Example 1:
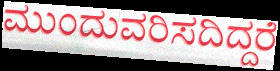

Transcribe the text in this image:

ಮುಂದುವರಿಸದಿದ್ದರೆ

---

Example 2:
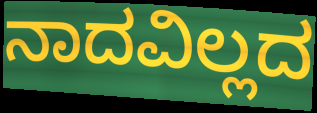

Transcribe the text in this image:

ನಾದವಿಲ್ಲದ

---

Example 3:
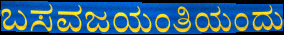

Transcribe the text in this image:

ಬಸವಜಯಂತಿಯಂದು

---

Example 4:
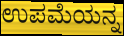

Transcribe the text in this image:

ಉಪಮೆಯನ್ನ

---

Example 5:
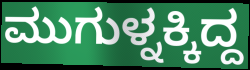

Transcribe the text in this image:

ಮುಗುಳ್ನಕ್ಕಿದ್ದ